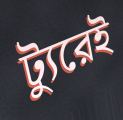
ট্যুরেই